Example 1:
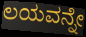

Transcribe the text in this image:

ಲಯವನ್ನೇ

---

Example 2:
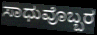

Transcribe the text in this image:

ಸಾಧುವೊಬ್ಬರ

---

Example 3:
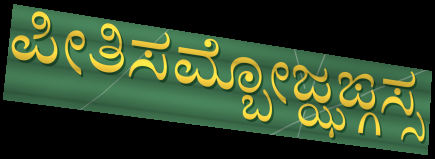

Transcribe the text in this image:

ಪೀತಿಸಮ್ಬೋಜ್ಝಙ್ಗಸ್ಸ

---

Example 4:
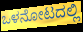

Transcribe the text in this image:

ಒಳನೋಟದಲ್ಲಿ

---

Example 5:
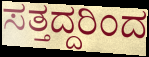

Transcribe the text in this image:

ಸತ್ತದ್ದರಿಂದ